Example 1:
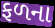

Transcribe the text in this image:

ફળના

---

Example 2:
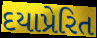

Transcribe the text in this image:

દયાપ્રેરિત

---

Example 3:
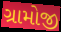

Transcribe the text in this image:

ગ્રામોજી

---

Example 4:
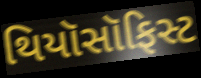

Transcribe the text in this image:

થિયૉસૉફિસ્ટ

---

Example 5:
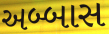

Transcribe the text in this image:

અબ્બાસ